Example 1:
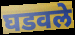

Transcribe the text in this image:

घडवले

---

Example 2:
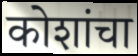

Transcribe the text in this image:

कोशांचा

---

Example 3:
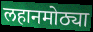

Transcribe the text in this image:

लहानमोठ्या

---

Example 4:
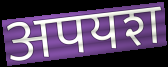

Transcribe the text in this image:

अपयश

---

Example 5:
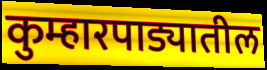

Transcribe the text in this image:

कुम्हारपाड्यातील